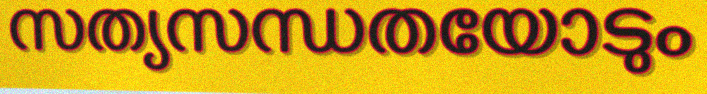
സത്യസന്ധതയോടും